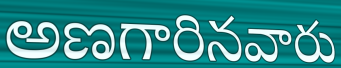
అణగారినవారు